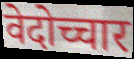
वेदोच्चार